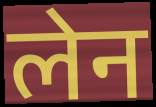
लेन